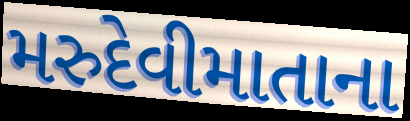
મરુદેવીમાતાના